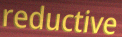
reductive